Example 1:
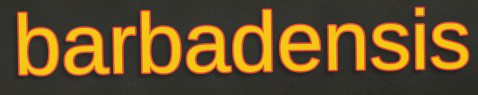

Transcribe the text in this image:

barbadensis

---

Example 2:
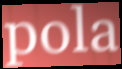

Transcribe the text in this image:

pola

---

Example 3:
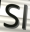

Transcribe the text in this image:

Sl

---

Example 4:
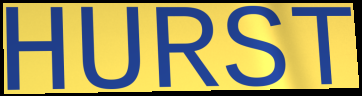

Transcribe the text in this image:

HURST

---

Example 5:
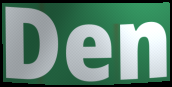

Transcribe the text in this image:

Den